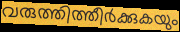
വരുത്തിത്തീർക്കുകയും